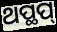
ଥପ୍ଥପ୍